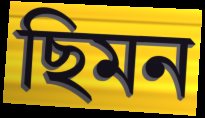
ছিমন